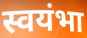
स्वयंभा